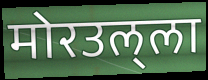
मोरउल्ला